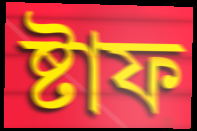
ষ্টাফ